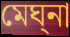
মেঘ্‌না